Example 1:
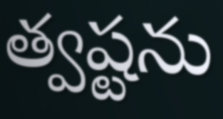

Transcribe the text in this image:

త్వష్టను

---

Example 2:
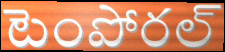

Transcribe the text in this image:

టెంపోరల్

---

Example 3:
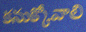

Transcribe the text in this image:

కనుక్కోవాలి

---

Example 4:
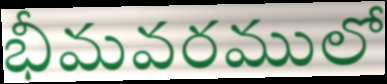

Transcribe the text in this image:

భీమవరములో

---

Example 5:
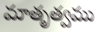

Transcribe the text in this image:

మాతృత్వము